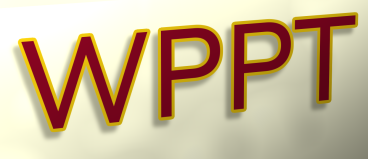
WPPT